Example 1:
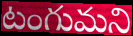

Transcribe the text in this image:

టంగుమని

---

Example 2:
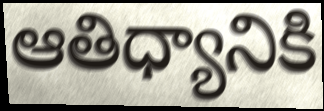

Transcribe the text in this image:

ఆతిధ్యానికి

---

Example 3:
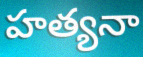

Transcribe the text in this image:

హత్యనా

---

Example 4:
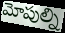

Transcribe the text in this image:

మోపుల్ని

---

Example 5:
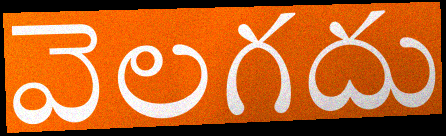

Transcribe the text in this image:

వెలగదు